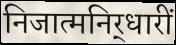
निजात्मनिर्धारीं